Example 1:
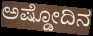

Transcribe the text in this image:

ಅಷ್ಡೋದಿನ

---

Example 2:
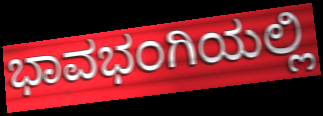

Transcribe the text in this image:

ಭಾವಭಂಗಿಯಲ್ಲಿ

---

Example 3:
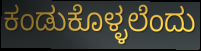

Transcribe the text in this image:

ಕಂಡುಕೊಳ್ಳಲೆಂದು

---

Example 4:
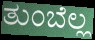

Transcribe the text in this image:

ತುಂಬೆಲ್ಲ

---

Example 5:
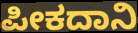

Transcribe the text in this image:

ಪೀಕದಾನಿ